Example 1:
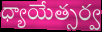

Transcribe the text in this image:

ధ్యాయేత్సర్వ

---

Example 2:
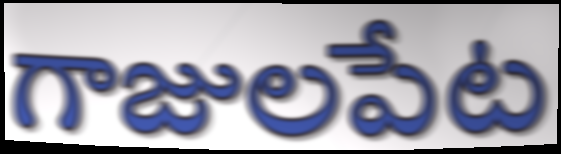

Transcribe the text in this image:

గాజులపేట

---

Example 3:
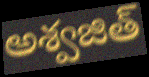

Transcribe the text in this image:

అశ్వజిత్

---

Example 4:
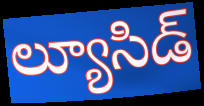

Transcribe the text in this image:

ల్యూసిడ్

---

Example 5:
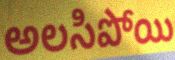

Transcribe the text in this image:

అలసిపోయి